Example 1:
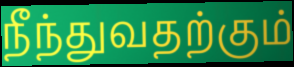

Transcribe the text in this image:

நீந்துவதற்கும்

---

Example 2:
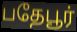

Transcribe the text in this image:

பதேபூர்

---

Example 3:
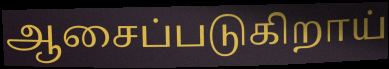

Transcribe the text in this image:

ஆசைப்படுகிறாய்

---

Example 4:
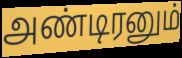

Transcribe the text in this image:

அண்டிரனும்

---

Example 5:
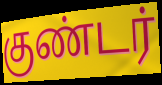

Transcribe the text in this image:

குண்டர்